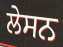
ਲੇਸਨ